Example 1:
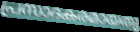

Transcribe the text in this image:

പ്രസാദകരമായതു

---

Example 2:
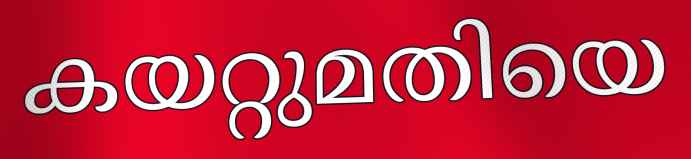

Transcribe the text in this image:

കയറ്റുമതിയെ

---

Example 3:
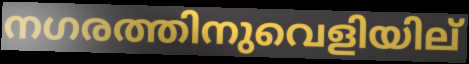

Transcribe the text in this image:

നഗരത്തിനുവെളിയില്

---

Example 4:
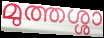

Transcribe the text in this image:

മുത്തശ്ശാ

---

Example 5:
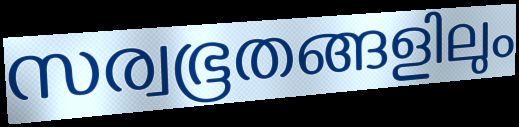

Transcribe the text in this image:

സര്വഭൂതങ്ങളിലും